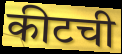
कीटची